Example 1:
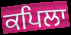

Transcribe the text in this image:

ਕਪਿਲਾ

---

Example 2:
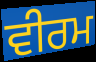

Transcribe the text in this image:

ਵੀਰਮ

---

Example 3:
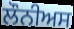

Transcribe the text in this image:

ਲੌਨੀਅਸ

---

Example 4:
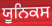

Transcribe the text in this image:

ਯੂਨਿਕਸ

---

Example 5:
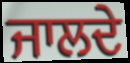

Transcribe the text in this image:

ਜਾਲਦੇ